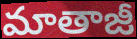
మాతాజీ